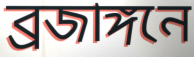
ব্রজাঙ্গনে